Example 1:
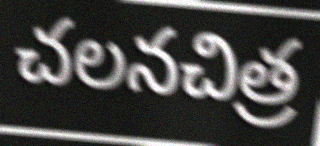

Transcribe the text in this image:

చలనచిత్ర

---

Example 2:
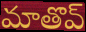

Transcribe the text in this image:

మాతొవ్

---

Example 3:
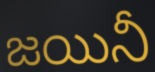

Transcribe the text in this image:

జయినీ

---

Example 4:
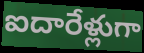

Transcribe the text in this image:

ఐదారేళ్లుగా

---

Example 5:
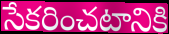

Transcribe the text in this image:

సేకరించటానికి